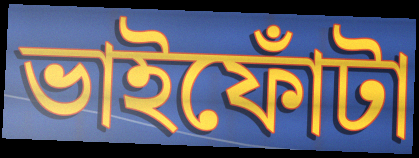
ভাইফোঁটা